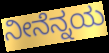
ನೀನೆನ್ನಯ